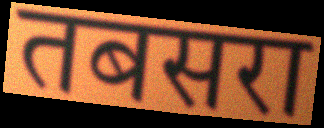
तबसरा